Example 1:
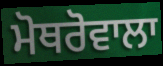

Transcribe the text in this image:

ਮੋਥਰੋਵਾਲਾ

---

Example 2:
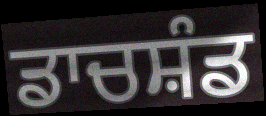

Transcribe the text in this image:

ਡਾਚਸ਼ੰਡ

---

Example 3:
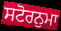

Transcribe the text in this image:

ਸਟੋਰਨੁਮਾ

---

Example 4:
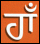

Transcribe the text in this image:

ਹਾਁ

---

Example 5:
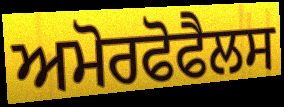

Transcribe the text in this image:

ਅਮੋਰਫੋਫੈਲਸ